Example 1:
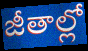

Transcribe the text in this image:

జీతాల్లో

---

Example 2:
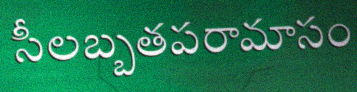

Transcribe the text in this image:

సీలబ్బతపరామాసం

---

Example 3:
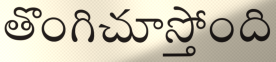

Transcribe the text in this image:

తొంగిచూస్తోంది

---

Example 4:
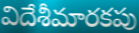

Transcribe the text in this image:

విదేశీమారకపు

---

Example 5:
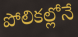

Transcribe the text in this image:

పోలికల్లోనే